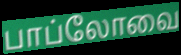
பாப்லோவை